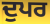
ਦੁਪਰ